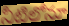
నీటిలోనూ